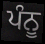
ਪੰਨੂ